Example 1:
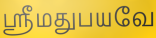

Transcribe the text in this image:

ஸ்ரீமதுபயவே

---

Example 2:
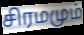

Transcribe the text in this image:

சிரமமும்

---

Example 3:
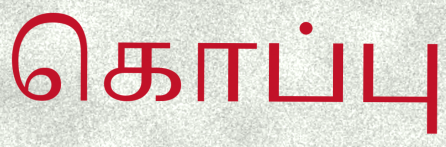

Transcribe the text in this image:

கொப்பு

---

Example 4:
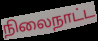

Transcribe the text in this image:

நிலைநாட்ட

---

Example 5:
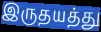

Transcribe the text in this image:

இருதயத்து